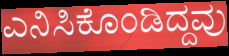
ಎನಿಸಿಕೊಂಡಿದ್ದವು